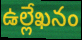
ఉల్లేఖనం